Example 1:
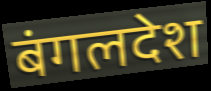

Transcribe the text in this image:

बंगलदेश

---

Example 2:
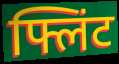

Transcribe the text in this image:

फ्लिंट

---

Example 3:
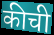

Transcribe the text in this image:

कीची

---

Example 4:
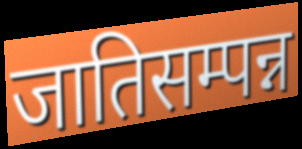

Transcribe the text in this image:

जातिसम्पन्न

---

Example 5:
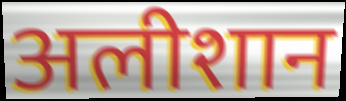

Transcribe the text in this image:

अलीशान